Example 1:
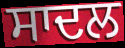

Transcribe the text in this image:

ਸਾਦਲ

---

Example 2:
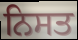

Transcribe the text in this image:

ਨਿਸਤ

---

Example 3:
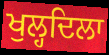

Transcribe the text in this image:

ਖੁਲ੍ਹਦਿਲਾ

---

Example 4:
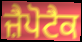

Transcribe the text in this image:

ਜ਼ੈਪੋਟੈਕ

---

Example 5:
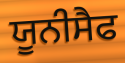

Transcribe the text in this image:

ਯੂਨੀਸੈਫ